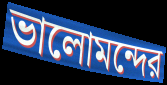
ভালোমন্দের